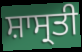
ਸ਼ਾਸ੍ਰਤੀ